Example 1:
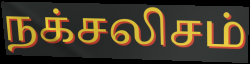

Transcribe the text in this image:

நக்சலிசம்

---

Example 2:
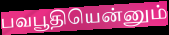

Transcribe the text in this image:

பவபூதியென்னும்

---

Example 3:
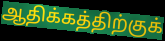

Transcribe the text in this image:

ஆதிக்கத்திற்குக்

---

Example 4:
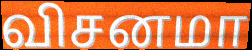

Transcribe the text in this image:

விசனமா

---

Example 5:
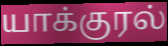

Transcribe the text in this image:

யாக்குரல்